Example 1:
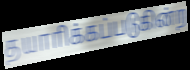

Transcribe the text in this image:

தயாரிக்கப்படுகின்ற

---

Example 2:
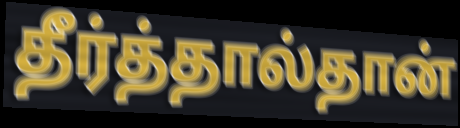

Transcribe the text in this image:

தீர்த்தால்தான்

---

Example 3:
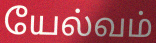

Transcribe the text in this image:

யேல்வம்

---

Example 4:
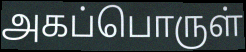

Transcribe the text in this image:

அகப்பொருள்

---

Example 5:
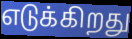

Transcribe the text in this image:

எடுக்கிறது